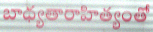
బాధ్యతారాహిత్యంతో